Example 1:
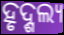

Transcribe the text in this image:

ହୃଦ୍ଶଲ୍ୟ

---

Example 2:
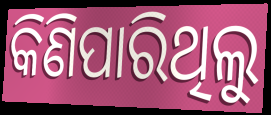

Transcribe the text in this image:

କିଣିପାରିଥିଲୁ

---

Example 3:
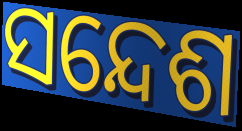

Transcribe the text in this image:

ସନ୍ଦେଶ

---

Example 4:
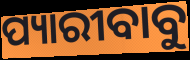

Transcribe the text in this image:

ପ୍ୟାରୀବାବୁ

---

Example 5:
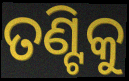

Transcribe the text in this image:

ତଣ୍ଟିକୁ